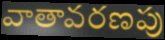
వాతావరణపు